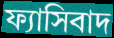
ফ্যাসিবাদ